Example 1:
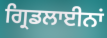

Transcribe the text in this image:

ਗ੍ਰਿਡਲਾਈਨਾਂ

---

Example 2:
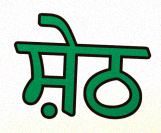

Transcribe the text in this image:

ਸ਼ੇਠ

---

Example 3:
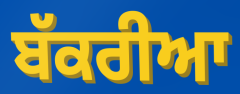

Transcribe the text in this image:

ਬੱਕਰੀਆ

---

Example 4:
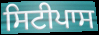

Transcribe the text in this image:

ਸਿਟੀਪਾਸ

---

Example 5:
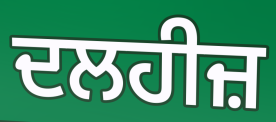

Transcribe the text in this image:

ਦਲਹੀਜ਼